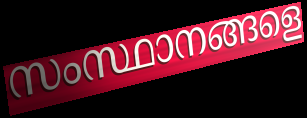
സംസ്ഥാനങ്ങളെ